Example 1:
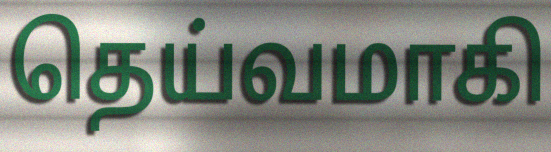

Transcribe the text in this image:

தெய்வமாகி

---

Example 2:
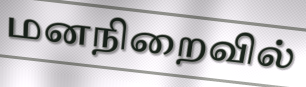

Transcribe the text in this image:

மனநிறைவில்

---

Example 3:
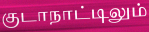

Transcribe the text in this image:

குடாநாட்டிலும்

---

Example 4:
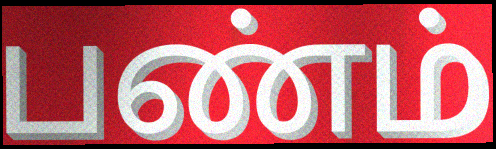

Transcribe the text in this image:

பண்ம்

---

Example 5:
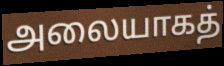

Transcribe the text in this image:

அலையாகத்